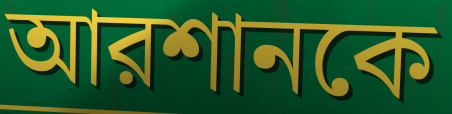
আরশানকে